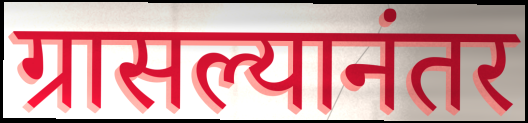
ग्रासल्यानंतर